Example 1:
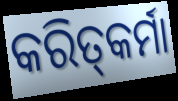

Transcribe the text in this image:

କରିତ୍‍କର୍ମା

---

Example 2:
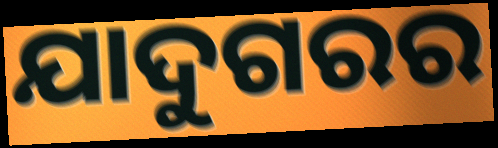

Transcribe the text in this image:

ଯାଦୁଗରର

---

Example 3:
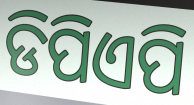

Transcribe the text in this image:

ଡିପିଏପି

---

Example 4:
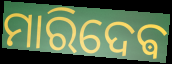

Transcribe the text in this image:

ମାରିଦେଵ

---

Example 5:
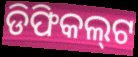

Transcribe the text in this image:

ଡିଫିକଲ୍‌ଟ